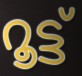
റൂട്ട്